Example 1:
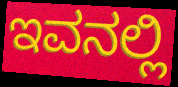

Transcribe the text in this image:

ಇವನಲ್ಲಿ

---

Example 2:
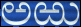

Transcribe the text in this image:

ಅಱು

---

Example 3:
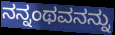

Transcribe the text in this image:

ನನ್ನಂಥವನನ್ನು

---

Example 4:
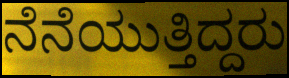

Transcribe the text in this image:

ನೆನೆಯುತ್ತಿದ್ದರು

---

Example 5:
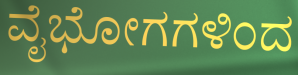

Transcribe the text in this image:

ವೈಭೋಗಗಳಿಂದ